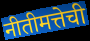
नीतीमत्तेची